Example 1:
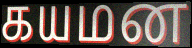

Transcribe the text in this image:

கயமன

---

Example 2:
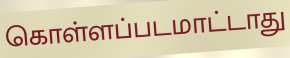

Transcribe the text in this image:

கொள்ளப்படமாட்டாது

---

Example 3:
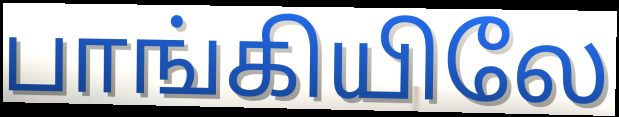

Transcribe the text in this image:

பாங்கியிலே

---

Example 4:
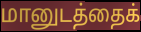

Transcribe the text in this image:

மானுடத்தைக்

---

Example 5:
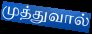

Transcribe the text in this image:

முத்துவால்